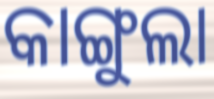
କାଙ୍ଗୁଲା